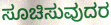
ಸೂಚಿಸುವುದರ